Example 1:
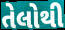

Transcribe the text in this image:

તેલોથી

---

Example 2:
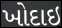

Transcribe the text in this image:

ખોદાઇ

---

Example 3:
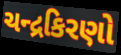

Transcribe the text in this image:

ચન્દ્રકિરણો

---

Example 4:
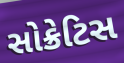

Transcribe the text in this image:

સોક્રેટિસ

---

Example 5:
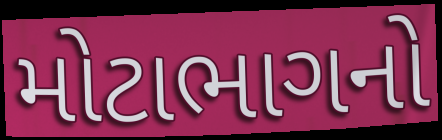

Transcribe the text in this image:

મોટાભાગનો